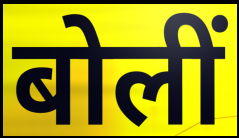
बोलीं